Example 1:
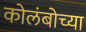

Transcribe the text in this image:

कोलंबोच्या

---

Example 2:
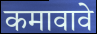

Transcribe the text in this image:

कमावावे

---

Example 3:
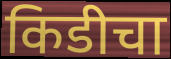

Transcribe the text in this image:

किडीचा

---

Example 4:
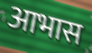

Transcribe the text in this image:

आभास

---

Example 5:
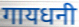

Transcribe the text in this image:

गायधनी